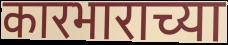
कारभाराच्या